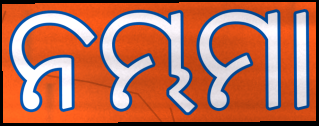
ନମ୍ଭମା